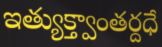
ఇత్యుక్త్వాంతర్దధే